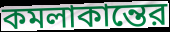
কমলাকান্তের